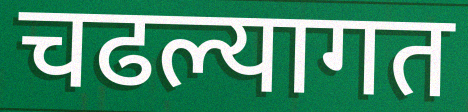
चढल्यागत